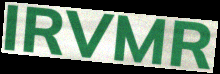
IRVMR